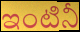
ఇంటినీ